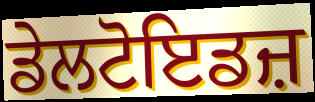
ਡੇਲਟੋਇਡਜ਼